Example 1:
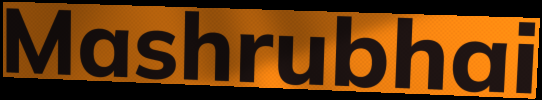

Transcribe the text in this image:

Mashrubhai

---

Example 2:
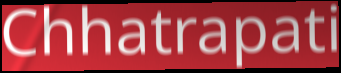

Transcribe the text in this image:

Chhatrapati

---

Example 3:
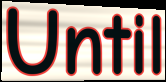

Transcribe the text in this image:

Until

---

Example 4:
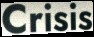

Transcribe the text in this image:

Crisis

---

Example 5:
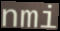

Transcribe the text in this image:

nmi